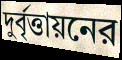
দুর্বৃত্তায়নের